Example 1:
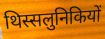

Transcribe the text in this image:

थिस्सलुनिकियों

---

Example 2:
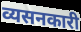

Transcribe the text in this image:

व्यसनकारी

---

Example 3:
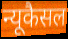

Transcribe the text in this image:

न्यूकैसल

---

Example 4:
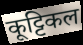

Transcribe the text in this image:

कूट्टिकल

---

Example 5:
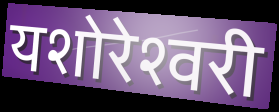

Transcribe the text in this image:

यशोरेश्वरी